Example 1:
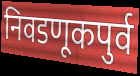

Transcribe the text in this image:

निवडणूकपुर्व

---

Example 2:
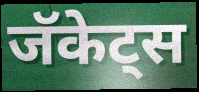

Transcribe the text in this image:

जॅकेट्स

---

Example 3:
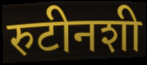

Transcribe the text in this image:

रुटीनशी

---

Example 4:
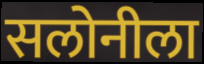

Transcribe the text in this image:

सलोनीला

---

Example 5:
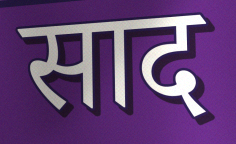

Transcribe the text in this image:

साद